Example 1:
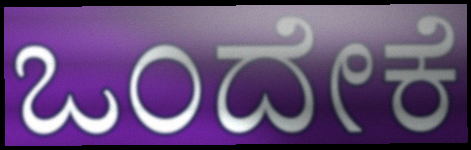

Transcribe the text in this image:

ಒಂದೇಕೆ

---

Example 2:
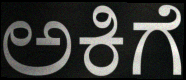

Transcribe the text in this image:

ಅಕಿಗೆ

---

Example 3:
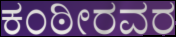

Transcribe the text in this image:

ಕಂಠೀರವರ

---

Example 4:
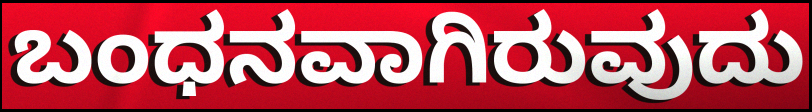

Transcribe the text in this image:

ಬಂಧನವಾಗಿರುವುದು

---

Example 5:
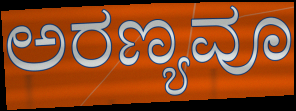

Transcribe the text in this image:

ಅರಣ್ಯವೂ